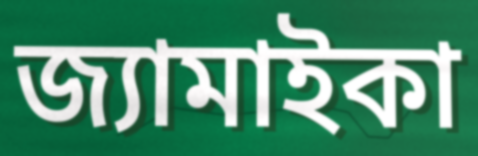
জ্যামাইকা